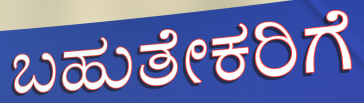
ಬಹುತೇಕರಿಗೆ